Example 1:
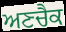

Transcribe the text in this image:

ਅਣਚੈਕ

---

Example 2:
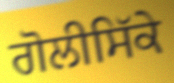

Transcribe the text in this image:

ਗੋਲੀਸਿੱਕੇ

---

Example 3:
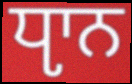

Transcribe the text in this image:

ਧੵਾਨ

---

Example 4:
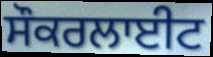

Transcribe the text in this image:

ਸੌਕਰਲਾਈਟ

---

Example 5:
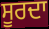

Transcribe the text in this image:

ਸੂਰਦਾ